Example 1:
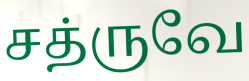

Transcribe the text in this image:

சத்ருவே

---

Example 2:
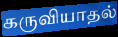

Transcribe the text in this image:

கருவியாதல்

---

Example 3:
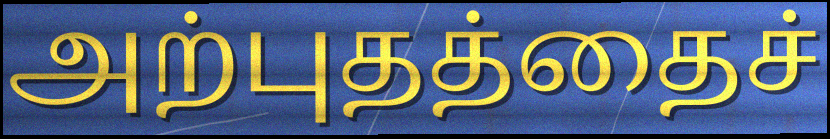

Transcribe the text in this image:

அற்புதத்தைச்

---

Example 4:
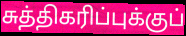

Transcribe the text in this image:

சுத்திகரிப்புக்குப்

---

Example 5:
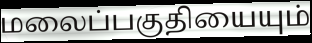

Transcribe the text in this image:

மலைப்பகுதியையும்